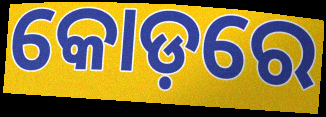
କୋଡ଼ରେ